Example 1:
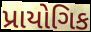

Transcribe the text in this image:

પ્રાયોગિક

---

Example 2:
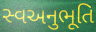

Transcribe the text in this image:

સ્વઅનુભૂતિ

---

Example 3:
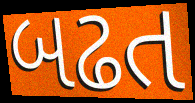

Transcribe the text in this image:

બઢત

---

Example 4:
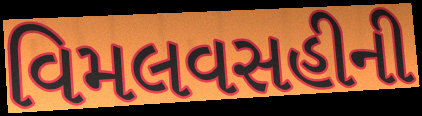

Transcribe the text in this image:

વિમલવસહીની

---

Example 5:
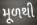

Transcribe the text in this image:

મૂળથી